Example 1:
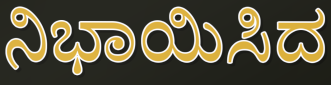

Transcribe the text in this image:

ನಿಭಾಯಿಸಿದ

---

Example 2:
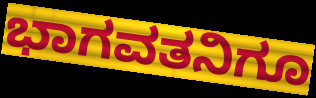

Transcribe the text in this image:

ಭಾಗವತನಿಗೂ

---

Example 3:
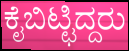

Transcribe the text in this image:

ಕೈಬಿಟ್ಟಿದ್ದರು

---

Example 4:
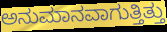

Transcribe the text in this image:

ಅನುಮಾನವಾಗುತ್ತಿತ್ತು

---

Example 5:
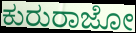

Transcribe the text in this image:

ಕುರುರಾಜೋ